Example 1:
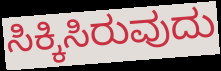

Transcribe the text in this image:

ಸಿಕ್ಕಿಸಿರುವುದು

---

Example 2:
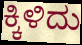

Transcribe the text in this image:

ಕ್ಕಿಳಿದು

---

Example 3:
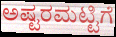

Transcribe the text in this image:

ಅಷ್ಟರಮಟ್ಟಿಗೆ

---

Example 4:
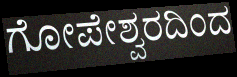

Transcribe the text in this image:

ಗೋಪೇಶ್ವರದಿಂದ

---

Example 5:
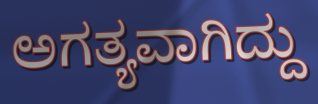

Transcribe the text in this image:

ಅಗತ್ಯವಾಗಿದ್ದು